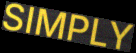
SIMPLY